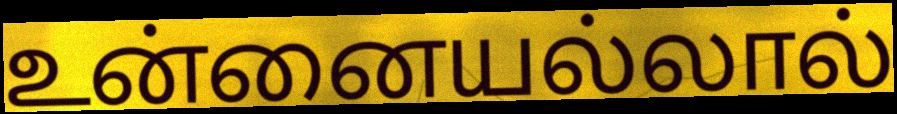
உன்னையல்லால்